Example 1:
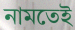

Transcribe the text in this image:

নামতেই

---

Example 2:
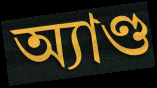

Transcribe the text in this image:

অ্যাণ্ড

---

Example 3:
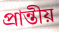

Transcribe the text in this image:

প্ৰান্তীয়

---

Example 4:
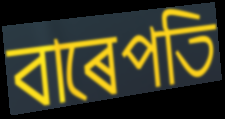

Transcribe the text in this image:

বাৰেপতি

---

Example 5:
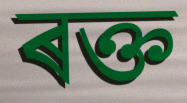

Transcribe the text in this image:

ৰক্ত